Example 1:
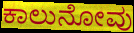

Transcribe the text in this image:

ಕಾಲುನೋವು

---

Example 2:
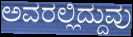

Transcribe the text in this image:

ಅವರಲ್ಲಿದ್ದುವು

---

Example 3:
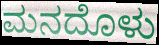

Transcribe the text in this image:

ಮನದೊಳು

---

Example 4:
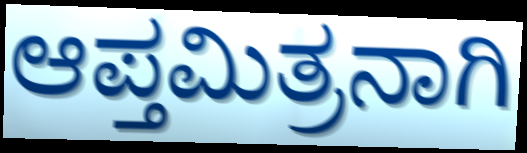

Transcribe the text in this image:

ಆಪ್ತಮಿತ್ರನಾಗಿ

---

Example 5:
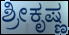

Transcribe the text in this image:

ಶ್ರೀಕೃಷ್ಣ